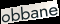
obbane